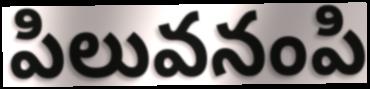
పిలువనంపి